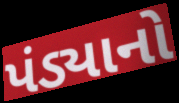
પંડ્યાનો